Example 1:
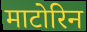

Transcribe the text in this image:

माटोरिन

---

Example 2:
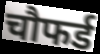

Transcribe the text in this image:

चौफर्ड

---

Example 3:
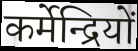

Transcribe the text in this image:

कर्मेन्द्रियों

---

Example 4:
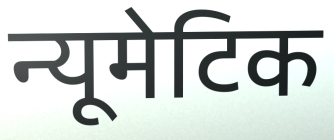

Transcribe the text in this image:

न्यूमेटिक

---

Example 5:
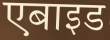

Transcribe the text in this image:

एबाइड